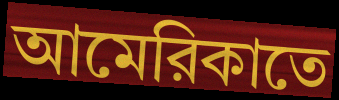
আমেরিকাতে